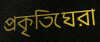
প্রকৃতিঘেরা